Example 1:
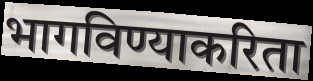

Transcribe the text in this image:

भागविण्याकरिता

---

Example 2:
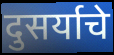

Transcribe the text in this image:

दुसर्याचे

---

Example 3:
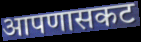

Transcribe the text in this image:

आपणासकट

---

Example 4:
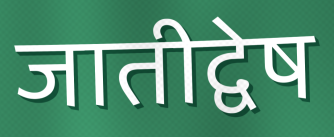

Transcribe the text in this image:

जातीद्वेष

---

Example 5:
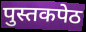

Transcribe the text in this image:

पुस्तकपेठ